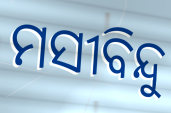
ମସୀବିନ୍ଦୁ